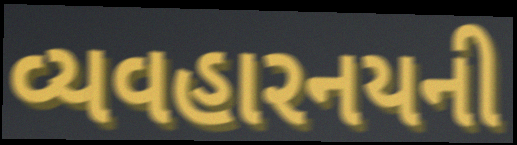
વ્યવહારનયની